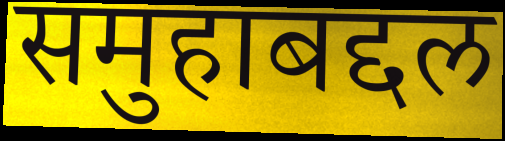
समुहाबद्दल